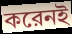
করেনই